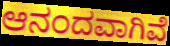
ಆನಂದವಾಗಿವೆ